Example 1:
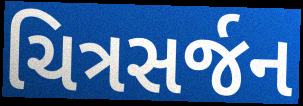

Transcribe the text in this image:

ચિત્રસર્જન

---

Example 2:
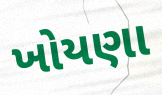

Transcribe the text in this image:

ખોયણા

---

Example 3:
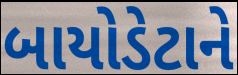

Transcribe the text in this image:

બાયોડેટાને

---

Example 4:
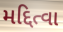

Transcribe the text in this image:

મદ્દિત્વા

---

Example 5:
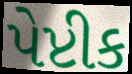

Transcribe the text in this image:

પેપ્ટીક